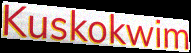
Kuskokwim